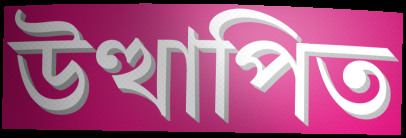
উত্থাপিত